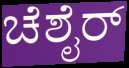
ಚೆಶೈರ್